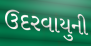
ઉદરવાયુની